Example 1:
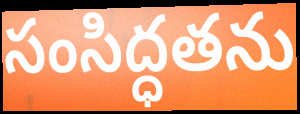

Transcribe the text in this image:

సంసిద్ధతను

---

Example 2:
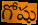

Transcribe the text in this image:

గోషు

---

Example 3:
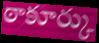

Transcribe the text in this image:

ఠాకూర్కు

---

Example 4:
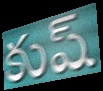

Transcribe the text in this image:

కుష్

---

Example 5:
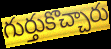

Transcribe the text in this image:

గుర్తుకొచ్చారు